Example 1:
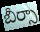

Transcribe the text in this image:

బీర్సా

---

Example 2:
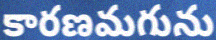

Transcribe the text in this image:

కారణమగును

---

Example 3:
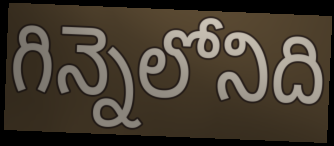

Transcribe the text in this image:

గిన్నెలోనిది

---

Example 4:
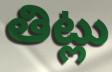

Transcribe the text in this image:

తిట్లు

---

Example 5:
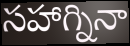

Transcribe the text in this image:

సహాగ్నినా